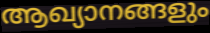
ആഖ്യാനങ്ങളും